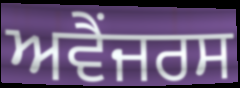
ਅਵੈਂਜਰਸ